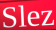
Slez